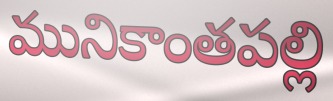
మునికాంతపల్లి